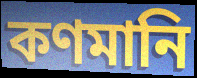
কণমানি